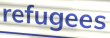
refugees